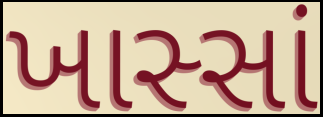
ખાસ્સાં